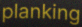
planking